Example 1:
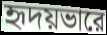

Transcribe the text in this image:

হৃদয়ভারে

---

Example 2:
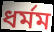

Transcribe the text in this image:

ধর্মম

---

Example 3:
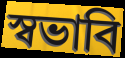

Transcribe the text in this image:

স্বভাবি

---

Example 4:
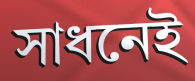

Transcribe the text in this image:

সাধনেই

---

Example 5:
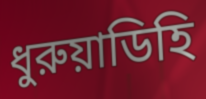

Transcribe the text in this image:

ধুরুয়াডিহি